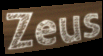
Zeus